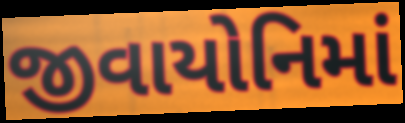
જીવાયોનિમાં